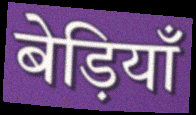
बेड़ियाँ